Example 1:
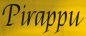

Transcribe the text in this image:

Pirappu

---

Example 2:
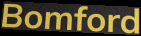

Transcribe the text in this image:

Bomford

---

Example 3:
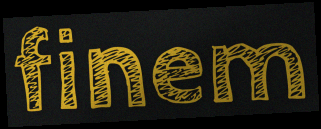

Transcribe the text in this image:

finem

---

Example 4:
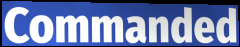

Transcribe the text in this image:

Commanded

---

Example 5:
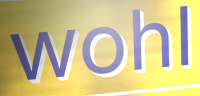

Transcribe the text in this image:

wohl